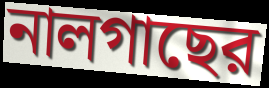
নালগাছের